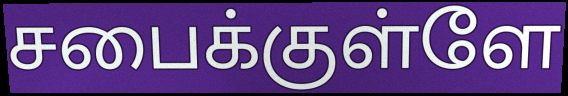
சபைக்குள்ளே